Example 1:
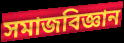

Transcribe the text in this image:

সমাজবিজ্ঞান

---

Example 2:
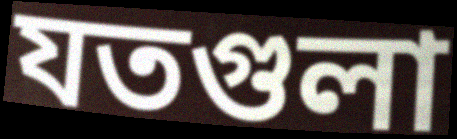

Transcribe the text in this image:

যতগুলা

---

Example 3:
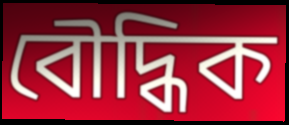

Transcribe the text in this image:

বৌদ্ধিক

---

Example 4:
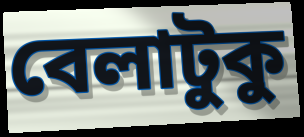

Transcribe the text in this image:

বেলাটুকু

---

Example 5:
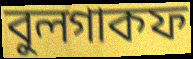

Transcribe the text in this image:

বুলগাকফ